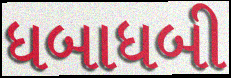
ધબાધબી